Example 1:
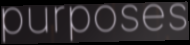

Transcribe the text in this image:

purposes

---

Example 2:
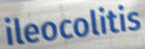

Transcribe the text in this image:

ileocolitis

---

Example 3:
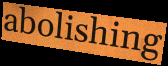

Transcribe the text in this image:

abolishing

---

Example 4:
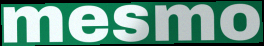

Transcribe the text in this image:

mesmo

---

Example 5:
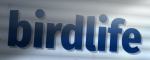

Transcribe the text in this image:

birdlife